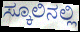
ಸ್ಕೂಲಿನಲ್ಲಿ